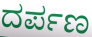
ದರ್ಪಣ